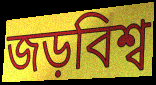
জড়বিশ্ব